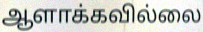
ஆளாக்கவில்லை